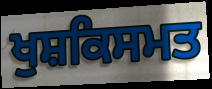
ਖੁਸ਼ਕਿਸਮਤ